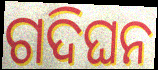
ଗଦିଘନ